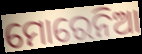
ମୋରେନିଆ